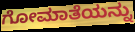
ಗೋಮಾತೆಯನ್ನು